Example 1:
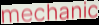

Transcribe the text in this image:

mechanic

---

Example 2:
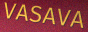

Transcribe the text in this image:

VASAVA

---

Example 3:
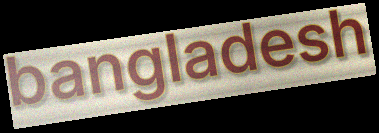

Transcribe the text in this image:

bangladesh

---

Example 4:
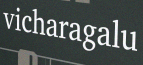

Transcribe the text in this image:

vicharagalu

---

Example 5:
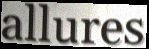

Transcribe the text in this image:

allures